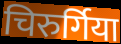
चिरुर्गिया